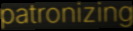
patronizing